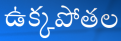
ఉక్కపోతల